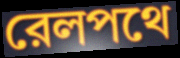
রেলপথে